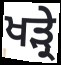
ਖੜ੍ਰੇ